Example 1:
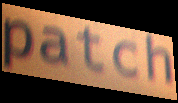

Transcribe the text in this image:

patch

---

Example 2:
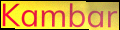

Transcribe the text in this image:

Kambar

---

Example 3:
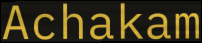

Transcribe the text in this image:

Achakam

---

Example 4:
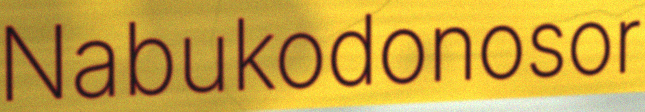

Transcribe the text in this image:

Nabukodonosor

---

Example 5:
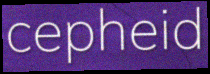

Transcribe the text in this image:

cepheid